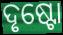
ଦୃଷ୍ଟୋ